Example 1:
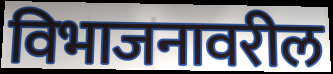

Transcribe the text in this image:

विभाजनावरील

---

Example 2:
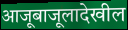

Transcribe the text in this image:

आजूबाजूलादेखील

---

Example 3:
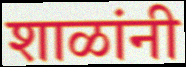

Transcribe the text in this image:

शाळांनी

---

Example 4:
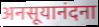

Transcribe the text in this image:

अनसूयानंदना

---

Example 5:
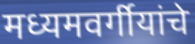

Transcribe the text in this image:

मध्यमवर्गीयांचे